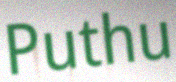
Puthu